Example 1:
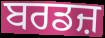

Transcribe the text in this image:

ਬਰਡਜ਼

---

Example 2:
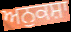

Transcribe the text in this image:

ਅਨੁਕਸ਼ਾ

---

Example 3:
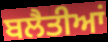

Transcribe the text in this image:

ਬਲੈਤੀਆਂ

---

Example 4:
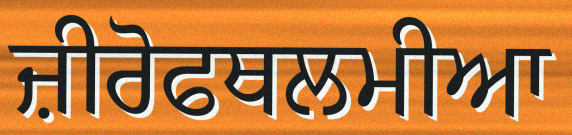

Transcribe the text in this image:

ਜ਼ੀਰੋਫਥਲਮੀਆ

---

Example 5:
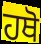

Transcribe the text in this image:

ਹਥੋ